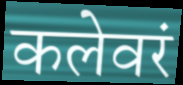
कलेवरं